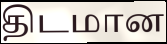
திடமான